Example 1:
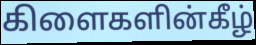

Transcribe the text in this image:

கிளைகளின்கீழ்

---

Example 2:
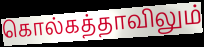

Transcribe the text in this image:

கொல்கத்தாவிலும்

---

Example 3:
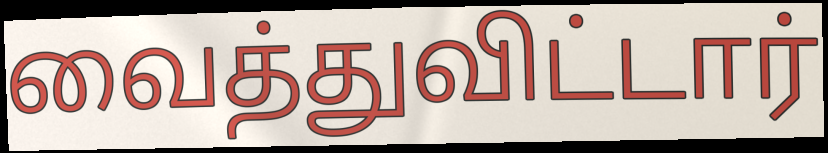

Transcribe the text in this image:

வைத்துவிட்டார்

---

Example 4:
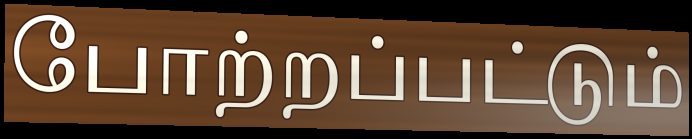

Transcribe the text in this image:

போற்றப்பட்டும்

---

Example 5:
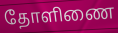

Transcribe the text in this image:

தோளிணை